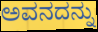
ಅವನದನ್ನು